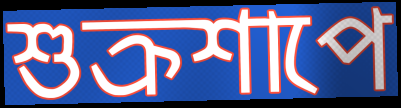
শুক্রশাপে